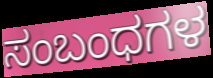
ಸಂಬಂಧಗಳ